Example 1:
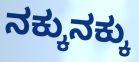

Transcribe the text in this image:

ನಕ್ಕುನಕ್ಕು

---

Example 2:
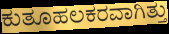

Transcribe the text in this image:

ಕುತೂಹಲಕರವಾಗಿತ್ತು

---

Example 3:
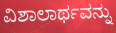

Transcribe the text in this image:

ವಿಶಾಲಾರ್ಥವನ್ನು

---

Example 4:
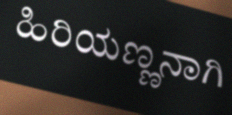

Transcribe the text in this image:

ಹಿರಿಯಣ್ಣನಾಗಿ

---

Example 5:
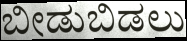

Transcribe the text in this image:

ಬೀಡುಬಿಡಲು